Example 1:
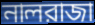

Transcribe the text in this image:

নালরাজা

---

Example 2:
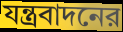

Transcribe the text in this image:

যন্ত্রবাদনের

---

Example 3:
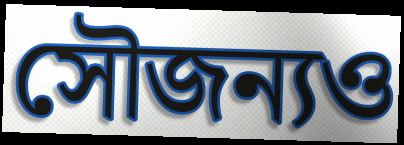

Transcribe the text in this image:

সৌজন্যও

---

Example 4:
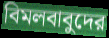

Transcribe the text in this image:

বিমলবাবুদের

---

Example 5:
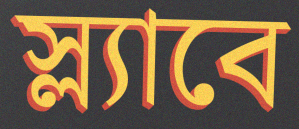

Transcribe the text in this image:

স্ল্যাবে